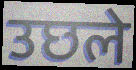
उछले